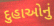
દુહાઓનું